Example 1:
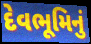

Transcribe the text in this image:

દેવભૂમિનું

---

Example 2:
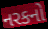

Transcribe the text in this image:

નરકનો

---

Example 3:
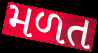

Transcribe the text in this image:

મળત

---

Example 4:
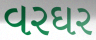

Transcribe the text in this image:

વરઘર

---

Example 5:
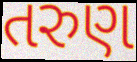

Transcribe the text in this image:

તરુણ